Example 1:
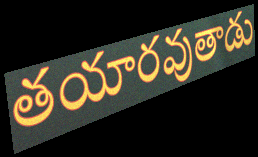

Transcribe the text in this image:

తయారవుతాడు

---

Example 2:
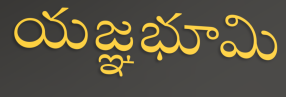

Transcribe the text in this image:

యజ్ఞభూమి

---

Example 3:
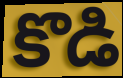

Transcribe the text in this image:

కొడి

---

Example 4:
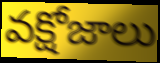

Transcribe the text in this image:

వక్షోజాలు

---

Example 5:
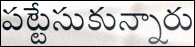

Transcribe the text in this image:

పట్టేసుకున్నారు